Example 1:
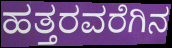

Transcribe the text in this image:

ಹತ್ತರವರೆಗಿನ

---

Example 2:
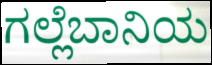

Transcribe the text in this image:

ಗಲ್ಲೆಬಾನಿಯ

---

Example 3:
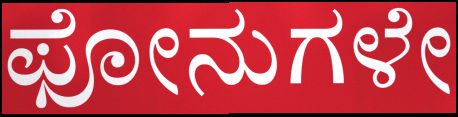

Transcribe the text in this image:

ಫೋನುಗಳೇ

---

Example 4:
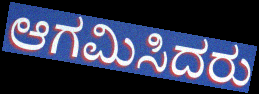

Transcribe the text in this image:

ಆಗಮಿಸಿದರು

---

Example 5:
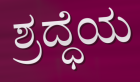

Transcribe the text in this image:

ಶ್ರದ್ಧೆಯ